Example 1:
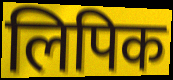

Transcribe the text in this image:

लिपिक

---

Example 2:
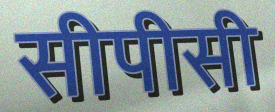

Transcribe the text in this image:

सीपीसी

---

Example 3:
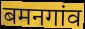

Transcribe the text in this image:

बमनगांव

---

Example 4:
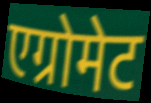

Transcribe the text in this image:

एग्रोमेट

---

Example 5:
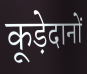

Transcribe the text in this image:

कूड़ेदानों